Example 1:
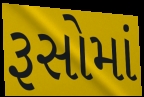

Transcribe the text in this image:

રૂસોમાં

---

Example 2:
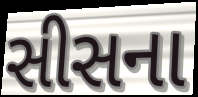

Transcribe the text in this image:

સીસના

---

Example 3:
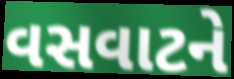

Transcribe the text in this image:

વસવાટને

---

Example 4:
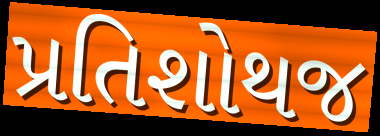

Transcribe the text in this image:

પ્રતિશોથજ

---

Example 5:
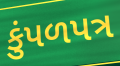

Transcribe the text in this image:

કુંપળપત્ર